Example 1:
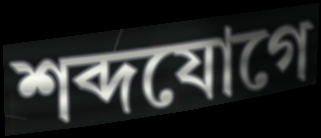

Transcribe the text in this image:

শব্দযোগে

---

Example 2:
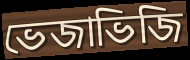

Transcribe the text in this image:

ভেজাভিজি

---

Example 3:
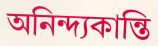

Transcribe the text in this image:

অনিন্দ্যকান্তি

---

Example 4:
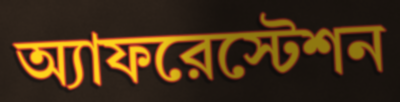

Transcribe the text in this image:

অ্যাফরেস্টেশন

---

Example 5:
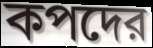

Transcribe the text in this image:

কপদের